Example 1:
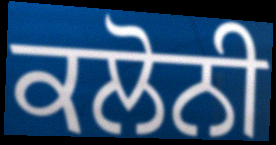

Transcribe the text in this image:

ਕਲੋਨੀ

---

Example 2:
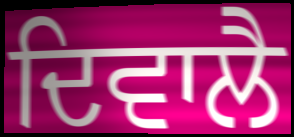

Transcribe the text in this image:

ਦਿਵਾਲੈ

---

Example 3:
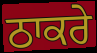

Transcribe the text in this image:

ਠਾਕਰੇ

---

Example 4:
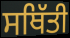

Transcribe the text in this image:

ਸਥਿੱਤੀ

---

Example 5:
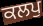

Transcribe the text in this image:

ਕਲਪੁ